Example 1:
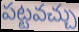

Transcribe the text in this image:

పట్టవచ్చు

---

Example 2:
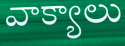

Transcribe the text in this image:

వాక్యాలు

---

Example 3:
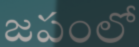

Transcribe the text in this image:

జపంలో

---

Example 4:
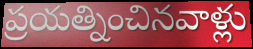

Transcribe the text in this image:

ప్రయత్నించినవాళ్లు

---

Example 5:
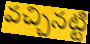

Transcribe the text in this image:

వచ్చినట్టి